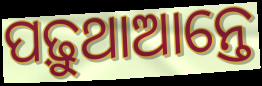
ପଢ଼ୁଥାଆନ୍ତେ